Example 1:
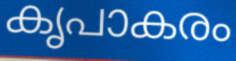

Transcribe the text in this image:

കൃപാകരം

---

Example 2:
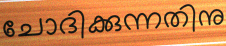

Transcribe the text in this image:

ചോദിക്കുന്നതിനു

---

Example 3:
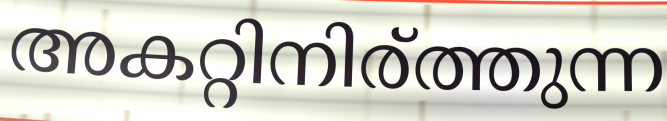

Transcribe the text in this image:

അകറ്റിനിര്ത്തുന്ന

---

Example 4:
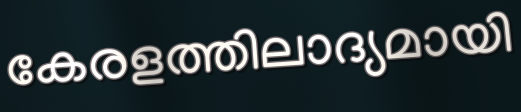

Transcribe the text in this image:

കേരളത്തിലാദ്യമായി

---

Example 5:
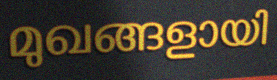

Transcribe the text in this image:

മുഖങ്ങളായി